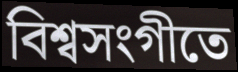
বিশ্বসংগীতে